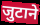
जुटाने